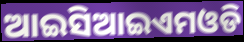
ଆଇସିଆଇଏମଓଡି